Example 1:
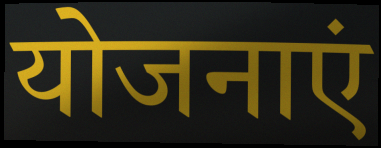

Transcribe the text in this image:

योजनाएं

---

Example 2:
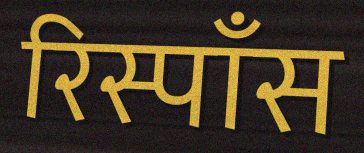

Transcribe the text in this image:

रिस्पॉंस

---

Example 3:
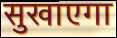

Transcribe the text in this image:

सुखाएगा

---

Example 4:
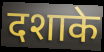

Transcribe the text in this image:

दशाके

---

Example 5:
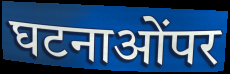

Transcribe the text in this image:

घटनाओंपर